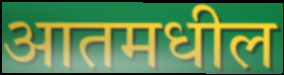
आतमधील